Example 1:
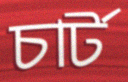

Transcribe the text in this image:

চার্ট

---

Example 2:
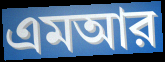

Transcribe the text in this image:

এমআর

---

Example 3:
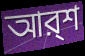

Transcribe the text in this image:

আর্‌শ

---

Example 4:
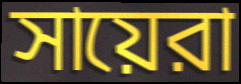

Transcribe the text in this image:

সায়েরা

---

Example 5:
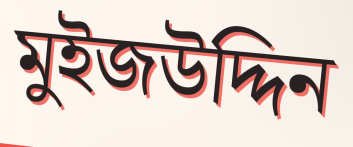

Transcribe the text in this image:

মুইজউদ্দিন